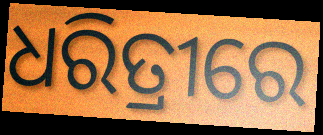
ଧରିତ୍ରୀରେ